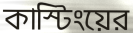
কাস্টিংয়ের